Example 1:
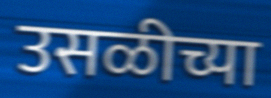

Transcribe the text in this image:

उसळीच्या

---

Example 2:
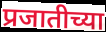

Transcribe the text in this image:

प्रजातीच्या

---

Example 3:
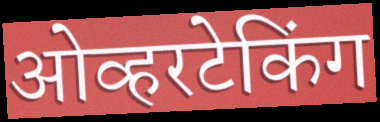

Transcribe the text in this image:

ओव्हरटेकिंग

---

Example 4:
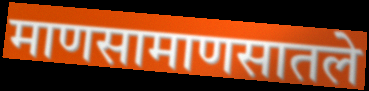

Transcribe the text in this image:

माणसामाणसातले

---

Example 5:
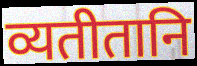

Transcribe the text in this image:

व्यतीतानि